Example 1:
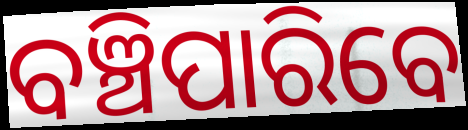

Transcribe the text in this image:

ବଞ୍ଚିପାରିବେ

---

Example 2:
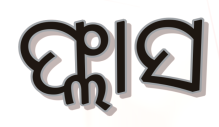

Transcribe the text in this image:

ଫ୍ଲାସ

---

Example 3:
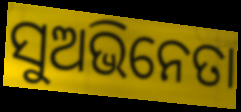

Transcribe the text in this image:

ସୁଅଭିନେତା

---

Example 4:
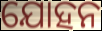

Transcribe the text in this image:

ଯୋହନ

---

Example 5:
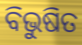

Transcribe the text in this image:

ବିଭୁଷିତ